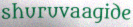
shuruvaagide